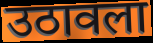
उठावला